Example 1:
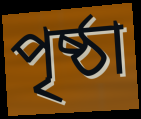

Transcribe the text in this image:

পৃষ্ঠা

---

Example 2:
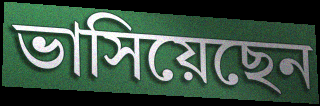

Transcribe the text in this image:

ভাসিয়েছেন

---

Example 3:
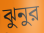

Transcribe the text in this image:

ঝুনুর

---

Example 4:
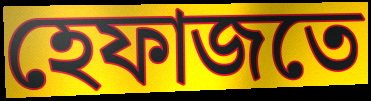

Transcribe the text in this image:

হেফাজতে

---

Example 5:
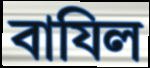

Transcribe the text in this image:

বাযিল